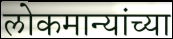
लोकमान्यांच्या